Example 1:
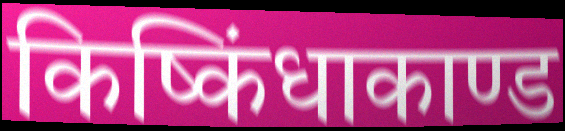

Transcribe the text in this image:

किष्किंधाकाण्ड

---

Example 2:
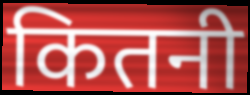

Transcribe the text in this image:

कितनी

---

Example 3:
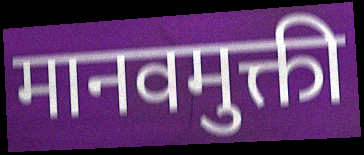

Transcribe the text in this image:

मानवमुक्ती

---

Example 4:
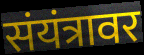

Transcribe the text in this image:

संयंत्रावर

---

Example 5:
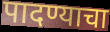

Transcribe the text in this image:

पादण्याचा